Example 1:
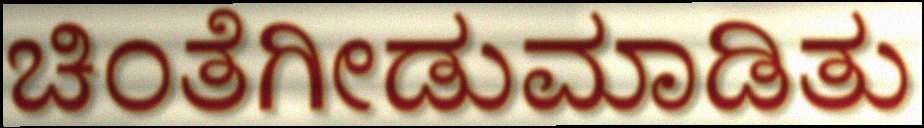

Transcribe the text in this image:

ಚಿಂತೆಗೀಡುಮಾಡಿತು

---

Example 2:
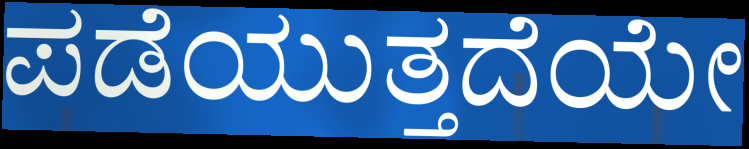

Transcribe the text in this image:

ಪಡೆಯುತ್ತದೆಯೇ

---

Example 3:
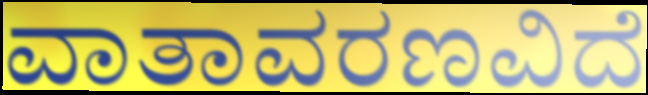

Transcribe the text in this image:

ವಾತಾವರಣವಿದೆ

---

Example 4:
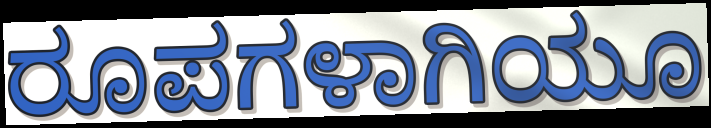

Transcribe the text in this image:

ರೂಪಗಳಾಗಿಯೂ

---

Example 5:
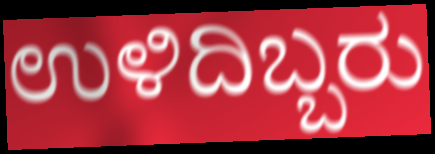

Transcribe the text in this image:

ಉಳಿದಿಬ್ಬರು